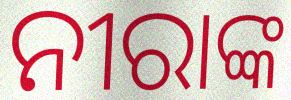
ନୀରାଙ୍କ